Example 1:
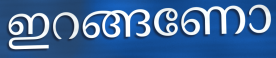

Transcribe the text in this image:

ഇറങ്ങണോ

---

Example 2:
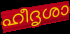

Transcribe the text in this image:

ഹീദൃശാ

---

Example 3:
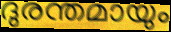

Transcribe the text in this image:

ദുരന്തമായും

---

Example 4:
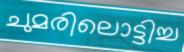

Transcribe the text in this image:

ചുമരിലൊട്ടിച്ച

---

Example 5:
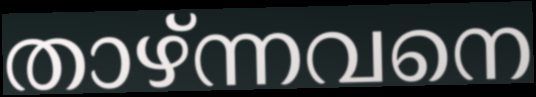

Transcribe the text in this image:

താഴ്ന്നവനെ